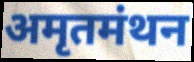
अमृतमंथन